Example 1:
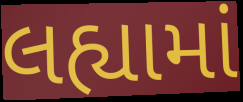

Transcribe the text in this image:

લહ્યામાં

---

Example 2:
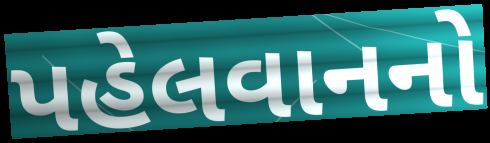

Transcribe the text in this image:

પહેલવાનનો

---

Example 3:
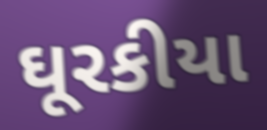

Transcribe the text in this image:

ઘૂરકીયા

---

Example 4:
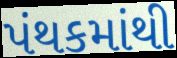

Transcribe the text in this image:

પંથકમાંથી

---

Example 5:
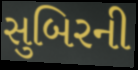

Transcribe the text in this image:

સુબિરની